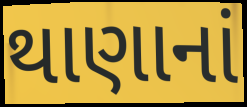
થાણાનાં